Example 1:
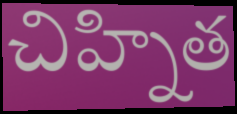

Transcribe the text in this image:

చిహ్నిత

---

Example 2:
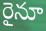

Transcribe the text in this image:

రైనూ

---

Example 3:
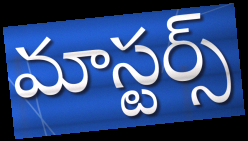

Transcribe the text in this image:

మాస్టర్స్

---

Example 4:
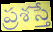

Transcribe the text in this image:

ప్రశస్తే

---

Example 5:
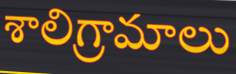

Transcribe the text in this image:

శాలిగ్రామాలు